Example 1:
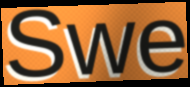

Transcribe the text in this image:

Swe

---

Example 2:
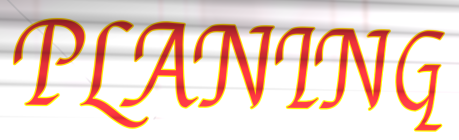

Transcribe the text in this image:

PLANING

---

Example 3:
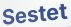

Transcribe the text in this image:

Sestet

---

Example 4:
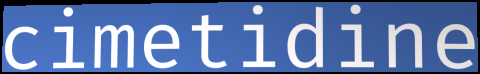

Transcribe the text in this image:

cimetidine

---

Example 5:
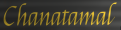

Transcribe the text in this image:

Chanatamal